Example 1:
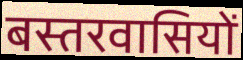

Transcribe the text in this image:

बस्तरवासियों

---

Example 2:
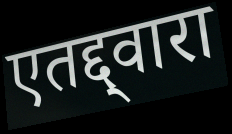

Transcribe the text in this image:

एतद्द्वारा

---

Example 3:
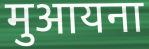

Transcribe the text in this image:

मुआयना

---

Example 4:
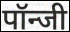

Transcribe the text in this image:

पॉन्जी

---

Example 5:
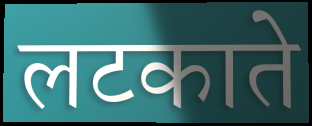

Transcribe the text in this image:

लटकाते